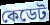
কেডেট